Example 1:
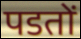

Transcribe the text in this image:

पडतों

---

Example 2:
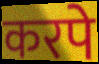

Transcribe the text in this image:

करपे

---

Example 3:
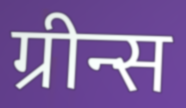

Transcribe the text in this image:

ग्रीन्स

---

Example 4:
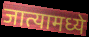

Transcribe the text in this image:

जात्यामध्ये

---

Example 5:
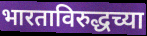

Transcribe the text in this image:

भारताविरुद्धच्या